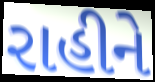
રાહીને